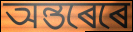
অন্তৰেৰে